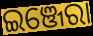
ଇଞ୍ଜେରା